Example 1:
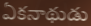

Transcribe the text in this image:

ఏకనాథుడు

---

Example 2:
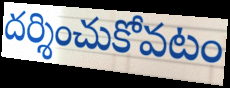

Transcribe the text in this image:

దర్శించుకోవటం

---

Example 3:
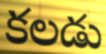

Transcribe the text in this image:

కలడు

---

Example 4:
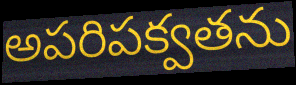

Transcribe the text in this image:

అపరిపక్వతను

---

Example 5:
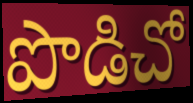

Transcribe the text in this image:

పొడిచో